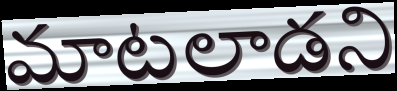
మాటలాడని